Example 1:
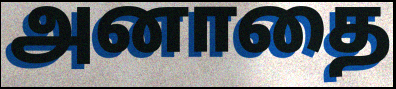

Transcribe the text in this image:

அனாதை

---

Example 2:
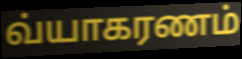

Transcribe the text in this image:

வ்யாகரணம்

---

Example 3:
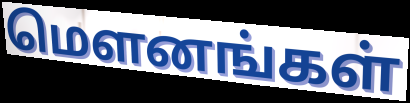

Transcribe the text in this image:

மௌனங்கள்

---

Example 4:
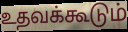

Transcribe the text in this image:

உதவக்கூடும்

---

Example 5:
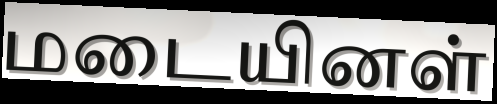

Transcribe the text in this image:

மடையினள்